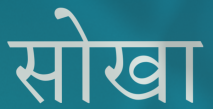
सोखा